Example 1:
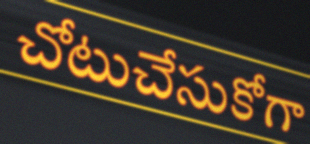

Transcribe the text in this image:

చోటుచేసుకోగా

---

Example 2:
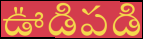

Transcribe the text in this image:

ఊడిపడి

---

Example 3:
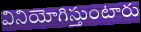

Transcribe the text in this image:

వినియోగిస్తుంటారు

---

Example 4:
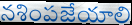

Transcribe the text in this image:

నశింపజేయాలి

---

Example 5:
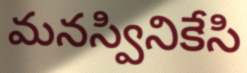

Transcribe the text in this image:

మనస్వినికేసి